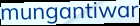
mungantiwar